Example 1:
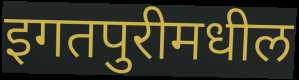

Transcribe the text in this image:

इगतपुरीमधील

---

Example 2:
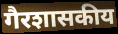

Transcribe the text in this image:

गैरशासकीय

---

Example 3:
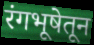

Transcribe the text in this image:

रंगभूषेतून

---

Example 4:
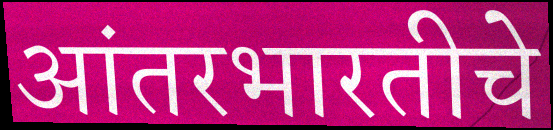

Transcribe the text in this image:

आंतरभारतीचे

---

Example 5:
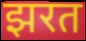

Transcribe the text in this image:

झरत